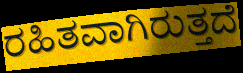
ರಹಿತವಾಗಿರುತ್ತದೆ